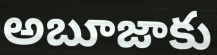
అబూజాకు